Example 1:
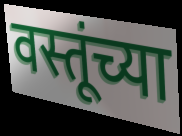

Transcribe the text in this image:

वस्तूंच्या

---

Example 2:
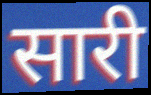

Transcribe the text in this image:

सारी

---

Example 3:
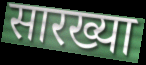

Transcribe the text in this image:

सारख्या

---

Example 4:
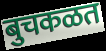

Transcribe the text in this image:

बुचकळत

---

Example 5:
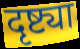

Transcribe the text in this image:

दृष्ट्या